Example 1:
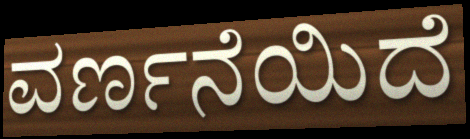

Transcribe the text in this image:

ವರ್ಣನೆಯಿದೆ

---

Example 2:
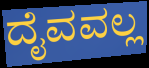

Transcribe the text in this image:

ದೈವವಲ್ಲ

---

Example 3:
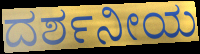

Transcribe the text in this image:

ದರ್ಶನೀಯ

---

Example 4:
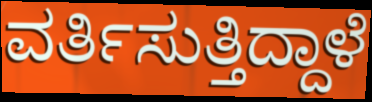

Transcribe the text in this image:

ವರ್ತಿಸುತ್ತಿದ್ದಾಳೆ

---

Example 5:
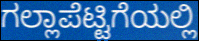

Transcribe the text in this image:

ಗಲ್ಲಾಪೆಟ್ಟಿಗೆಯಲ್ಲಿ